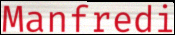
Manfredi